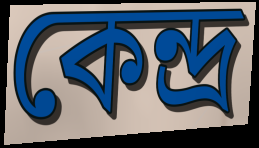
কেন্দ্ৰ